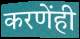
करणेंही